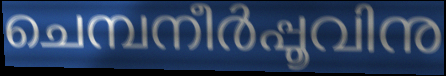
ചെമ്പനീർപ്പൂവിനു